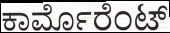
ಕಾರ್ಮೊರೆಂಟ್